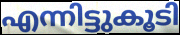
എന്നിട്ടുകൂടി